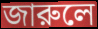
জারুলে